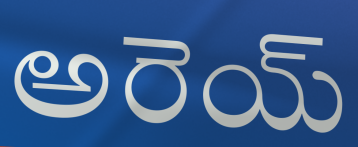
అరెయ్